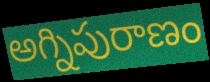
అగ్నిపురాణం